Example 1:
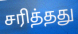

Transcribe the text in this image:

சரித்தது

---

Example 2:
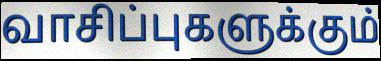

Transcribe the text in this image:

வாசிப்புகளுக்கும்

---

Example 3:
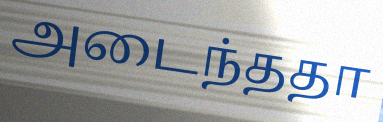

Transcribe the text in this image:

அடைந்ததா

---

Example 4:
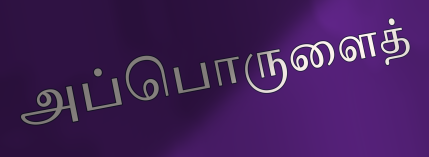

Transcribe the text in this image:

அப்பொருளைத்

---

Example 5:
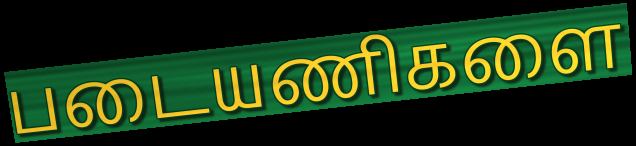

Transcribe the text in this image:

படையணிகளை